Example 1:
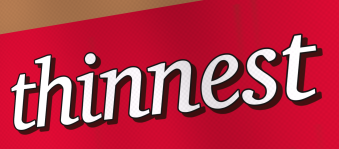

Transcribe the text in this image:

thinnest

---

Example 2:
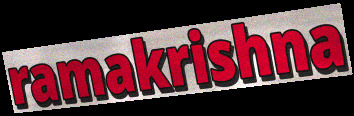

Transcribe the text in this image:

ramakrishna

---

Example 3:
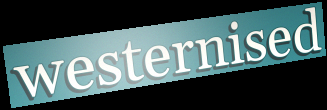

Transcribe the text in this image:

westernised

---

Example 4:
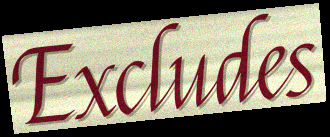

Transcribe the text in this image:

Excludes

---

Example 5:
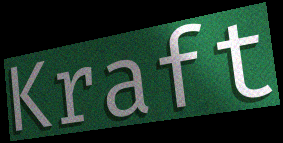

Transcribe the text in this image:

Kraft